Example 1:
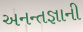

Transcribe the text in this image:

અનન્તજ્ઞાની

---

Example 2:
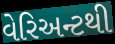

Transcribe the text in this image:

વેરિઅન્ટથી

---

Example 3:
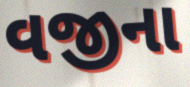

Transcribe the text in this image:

વજીના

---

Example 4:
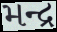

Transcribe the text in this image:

મન્દ્ર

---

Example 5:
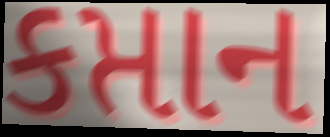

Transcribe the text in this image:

કપ્તાન